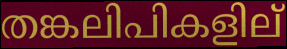
തങ്കലിപികളില്